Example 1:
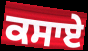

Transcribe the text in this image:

ਕਸਾਏ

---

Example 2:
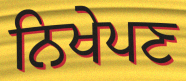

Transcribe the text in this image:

ਨਿਖੇਪਣ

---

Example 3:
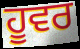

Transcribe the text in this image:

ਹੂਵਰ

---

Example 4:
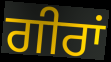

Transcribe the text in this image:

ਗੀਰਾਂ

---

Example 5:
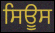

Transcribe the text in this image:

ਸਿਊਸ